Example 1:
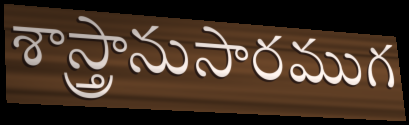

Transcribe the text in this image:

శాస్త్రానుసారముగ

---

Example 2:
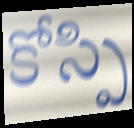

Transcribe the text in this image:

కోస్పి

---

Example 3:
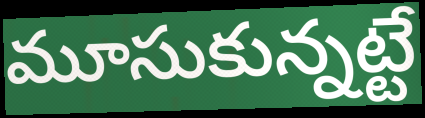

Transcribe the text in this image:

మూసుకున్నట్టే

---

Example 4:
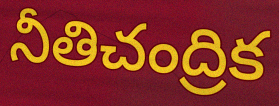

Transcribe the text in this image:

నీతిచంద్రిక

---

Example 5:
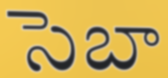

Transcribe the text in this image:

సెబా